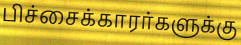
பிச்சைக்காரர்களுக்கு